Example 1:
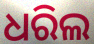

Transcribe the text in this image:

ଧରିଲ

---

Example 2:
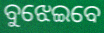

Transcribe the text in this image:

ବୁଝେଇବେ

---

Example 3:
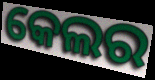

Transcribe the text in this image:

କେଲର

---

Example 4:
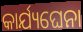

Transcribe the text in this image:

କାର୍ଯ୍ୟଘେନା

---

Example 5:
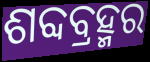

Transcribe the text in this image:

ଶବ୍ଦବ୍ରହ୍ମର